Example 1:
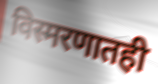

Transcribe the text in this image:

विस्मरणातही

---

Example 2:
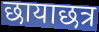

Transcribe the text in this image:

छायाछत्र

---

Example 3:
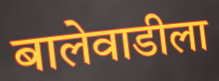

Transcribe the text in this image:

बालेवाडीला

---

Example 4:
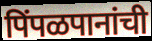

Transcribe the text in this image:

पिंपळपानांची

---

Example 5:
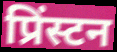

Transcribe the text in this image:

प्रिंस्टन